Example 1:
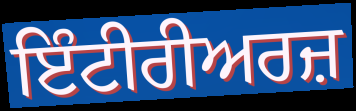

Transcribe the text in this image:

ਇੰਟੀਰੀਅਰਜ਼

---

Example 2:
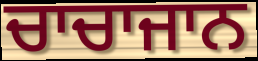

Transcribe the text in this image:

ਚਾਚਾਜਾਨ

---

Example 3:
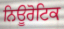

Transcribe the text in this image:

ਨਿਊਰੋਟਿਕ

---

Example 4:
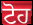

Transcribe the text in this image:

ਟੋਹ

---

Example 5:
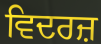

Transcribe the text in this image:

ਵਿਦਰਜ਼